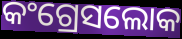
କଂଗ୍ରେସଲୋକ